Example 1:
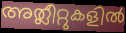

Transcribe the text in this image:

അത്ലീറ്റുകളിൽ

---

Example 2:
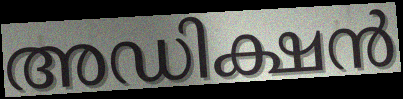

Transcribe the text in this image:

അഡിക്ഷൻ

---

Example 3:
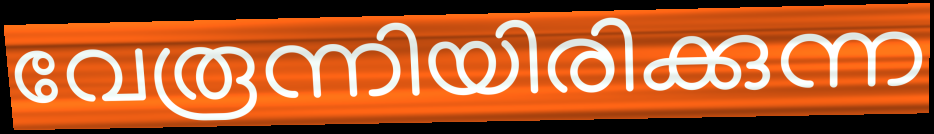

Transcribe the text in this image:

വേരൂന്നിയിരിക്കുന്ന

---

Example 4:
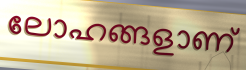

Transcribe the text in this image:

ലോഹങ്ങളാണ്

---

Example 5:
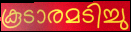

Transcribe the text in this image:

കൂടാരമടിച്ചു